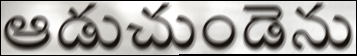
ఆడుచుండెను